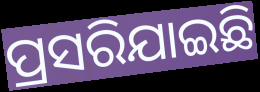
ପ୍ରସରିଯାଇଛି